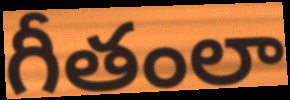
గీతంలా